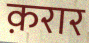
क़रार